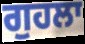
ਗੁਹਲਾ